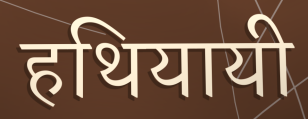
हथियायी